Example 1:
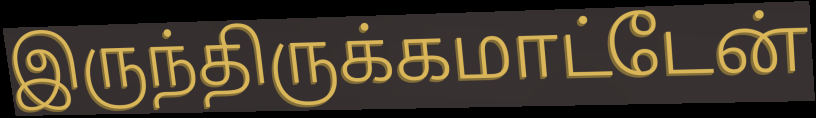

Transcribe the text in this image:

இருந்திருக்கமாட்டேன்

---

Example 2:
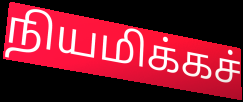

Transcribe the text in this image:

நியமிக்கச்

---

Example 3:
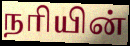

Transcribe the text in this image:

நரியின்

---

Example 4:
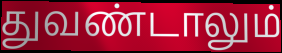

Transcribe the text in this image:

துவண்டாலும்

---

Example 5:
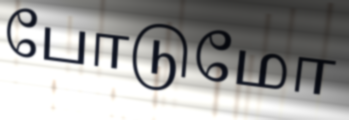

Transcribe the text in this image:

போடுமோ